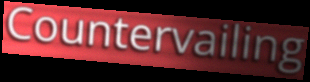
Countervailing